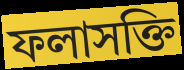
ফলাসক্তি